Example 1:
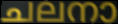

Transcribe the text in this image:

ചലനാ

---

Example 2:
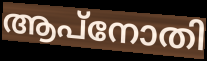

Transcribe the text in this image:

ആപ്നോതി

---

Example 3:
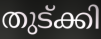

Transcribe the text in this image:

തുട്ക്കി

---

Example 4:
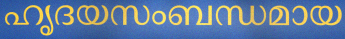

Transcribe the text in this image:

ഹൃദയസംബന്ധമായ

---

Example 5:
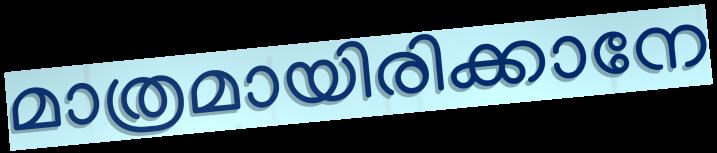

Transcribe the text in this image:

മാത്രമായിരിക്കാനേ